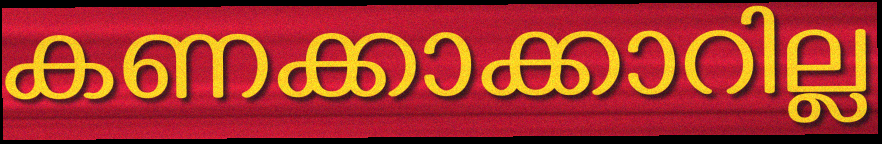
കണക്കാക്കാറില്ല